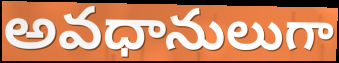
అవధానులుగా